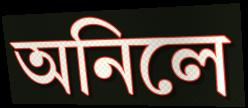
অনিলে